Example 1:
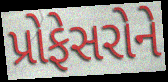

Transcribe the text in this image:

પ્રોફેસરોને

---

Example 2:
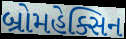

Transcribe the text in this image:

બ્રોમહેક્સિન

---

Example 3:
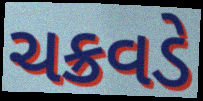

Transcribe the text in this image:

ચક્રવડે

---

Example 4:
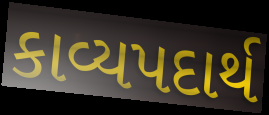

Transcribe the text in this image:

કાવ્યપદાર્થ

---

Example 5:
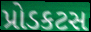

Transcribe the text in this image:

પ્રોડકટસ